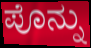
ಪೊನ್ನು